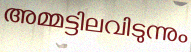
അമ്മട്ടിലവിടുന്നും